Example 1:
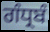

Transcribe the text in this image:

ਗੰਧ੍ਰਬੰ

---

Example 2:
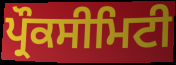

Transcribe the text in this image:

ਪ੍ਰੌਕਸੀਮਿਟੀ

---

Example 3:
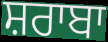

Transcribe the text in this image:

ਸ਼ਰਾਬਾ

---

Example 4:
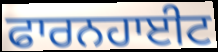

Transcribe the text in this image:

ਫਾਰਨਹਾਈਟ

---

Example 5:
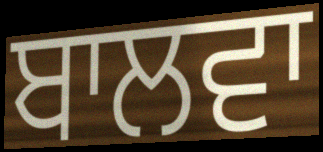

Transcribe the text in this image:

ਬਾਲਵਾ